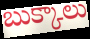
బుక్కాలు